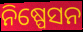
ନିଷ୍ପେସନ